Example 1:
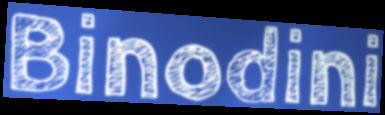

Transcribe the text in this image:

Binodini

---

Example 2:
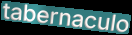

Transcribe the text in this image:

tabernaculo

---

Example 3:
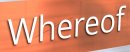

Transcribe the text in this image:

Whereof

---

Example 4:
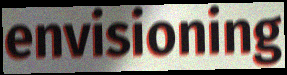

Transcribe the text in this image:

envisioning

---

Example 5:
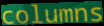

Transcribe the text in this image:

columns